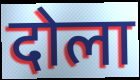
दोला